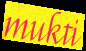
mukti